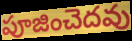
పూజించెదవు